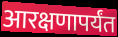
आरक्षणापर्यंत